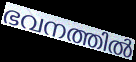
ഭവനത്തിൽ